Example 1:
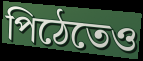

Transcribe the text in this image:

পিঠেতেও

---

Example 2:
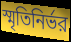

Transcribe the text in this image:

স্মৃতিনির্ভর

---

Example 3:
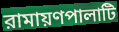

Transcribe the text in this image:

রামায়ণপালাটি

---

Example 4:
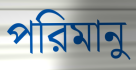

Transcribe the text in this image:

পরিমানু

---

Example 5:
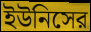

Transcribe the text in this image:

ইউনিসের